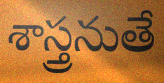
శాస్త్రనుతే